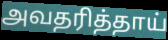
அவதரித்தாய்